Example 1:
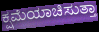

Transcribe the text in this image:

ಕ್ಷಮೆಯಾಚಿಸುತ್ತಾ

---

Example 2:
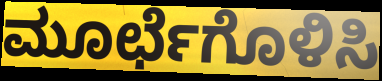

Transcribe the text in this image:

ಮೂರ್ಛೆಗೊಳಿಸಿ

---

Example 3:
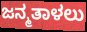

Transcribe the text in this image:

ಜನ್ಮತಾಳಲು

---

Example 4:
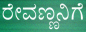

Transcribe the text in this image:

ರೇವಣ್ಣನಿಗೆ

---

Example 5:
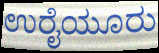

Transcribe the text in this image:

ಉರೈಯೂರು